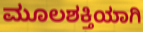
ಮೂಲಶಕ್ತಿಯಾಗಿ